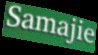
Samajie